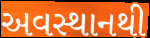
અવસ્થાનથી